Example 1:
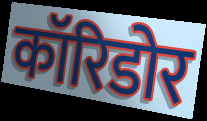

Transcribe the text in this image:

कॉरिडोर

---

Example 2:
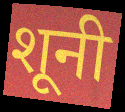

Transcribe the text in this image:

शूनी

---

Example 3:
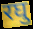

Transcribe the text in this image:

रघु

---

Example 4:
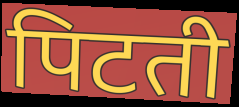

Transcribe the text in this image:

पिटती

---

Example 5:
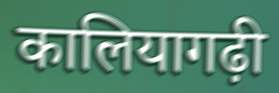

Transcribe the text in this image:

कालियागढ़ी